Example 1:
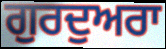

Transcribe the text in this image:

ਗੁਰਦੁਅਰਾ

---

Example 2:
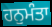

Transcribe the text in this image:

ਹਨੁਮੰਤਾ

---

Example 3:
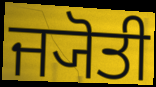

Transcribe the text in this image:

ਜ੍ਯੋਤੀ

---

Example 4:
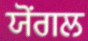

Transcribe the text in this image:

ਯੋਂਗਲ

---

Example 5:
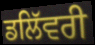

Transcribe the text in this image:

ਡਲਿੱਵਰੀ